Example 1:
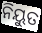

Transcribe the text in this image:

ନିୟୁତ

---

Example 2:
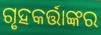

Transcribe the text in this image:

ଗୃହକର୍ତ୍ତାଙ୍କର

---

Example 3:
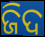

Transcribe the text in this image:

ଜିଦ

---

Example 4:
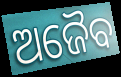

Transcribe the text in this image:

ଅଜୈବ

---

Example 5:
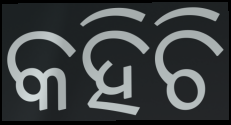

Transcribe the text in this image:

କହିଚି